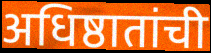
अधिष्ठातांची